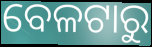
ବେଳଟାରୁ